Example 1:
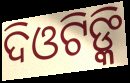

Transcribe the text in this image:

ଦିଓଟିଙ୍କି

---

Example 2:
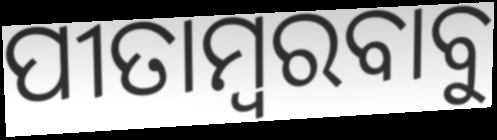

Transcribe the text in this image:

ପୀତାମ୍ବରବାବୁ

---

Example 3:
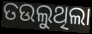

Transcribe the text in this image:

ତଉଲୁଥିଲା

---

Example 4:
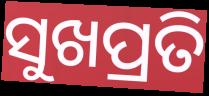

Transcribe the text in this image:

ସୁଖପ୍ରତି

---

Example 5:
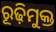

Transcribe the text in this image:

ରୂଢ଼ିମୁକ୍ତ